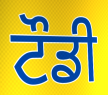
ਟੌਡੀ